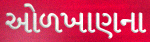
ઓળખાણના